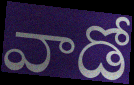
వాడో